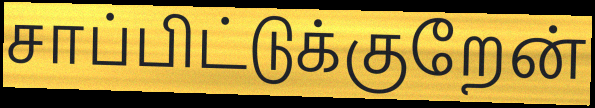
சாப்பிட்டுக்குறேன்